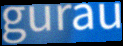
gurau